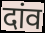
दांव